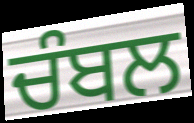
ਚੰਬਲ